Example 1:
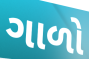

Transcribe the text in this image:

ગાળો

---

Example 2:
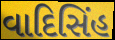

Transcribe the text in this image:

વાદિસિંહ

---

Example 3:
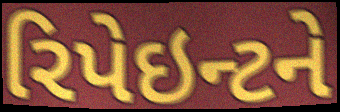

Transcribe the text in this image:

રિપેઇન્ટને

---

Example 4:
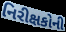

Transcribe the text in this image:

નિરીક્ષકોની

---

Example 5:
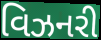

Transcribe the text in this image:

વિઝનરી